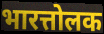
भारत्तोलक